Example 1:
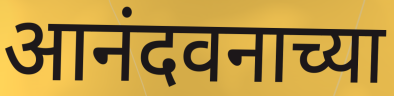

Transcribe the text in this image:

आनंदवनाच्या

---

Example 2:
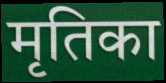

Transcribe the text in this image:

मृतिका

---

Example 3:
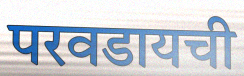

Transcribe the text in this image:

परवडायची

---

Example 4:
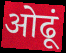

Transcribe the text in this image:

ओढूं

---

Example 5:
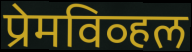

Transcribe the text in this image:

प्रेमविव्हल